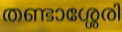
തണ്ടാശ്ശേരി